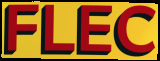
FLEC